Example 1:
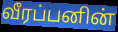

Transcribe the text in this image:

வீரப்பனின்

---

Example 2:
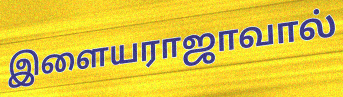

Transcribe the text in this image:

இளையராஜாவால்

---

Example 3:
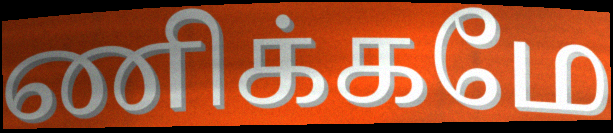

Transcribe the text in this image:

ணிக்கமே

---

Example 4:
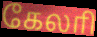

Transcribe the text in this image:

கேலரி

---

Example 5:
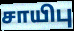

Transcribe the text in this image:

சாயிபு